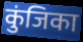
कुंजिका